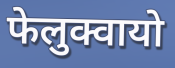
फेलुक्वायो